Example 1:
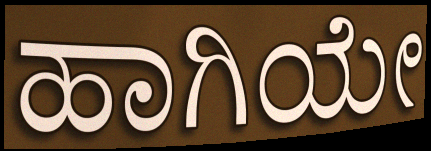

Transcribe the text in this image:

ಹಾಗಿಯೇ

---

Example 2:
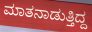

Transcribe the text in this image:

ಮಾತನಾಡುತ್ತಿದ್ದ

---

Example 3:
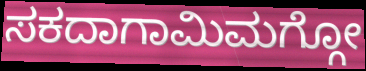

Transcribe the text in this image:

ಸಕದಾಗಾಮಿಮಗ್ಗೋ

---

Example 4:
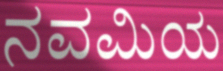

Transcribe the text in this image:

ನವಮಿಯ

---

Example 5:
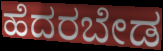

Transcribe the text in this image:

ಹೆದರಬೇಡ